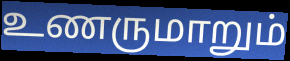
உணருமாறும்